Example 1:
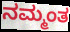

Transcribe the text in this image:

ನಮ್ಮಂತ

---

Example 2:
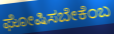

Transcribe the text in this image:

ಘೋಷಿಸಬೇಕೆಂಬ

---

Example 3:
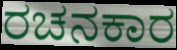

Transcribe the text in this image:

ರಚನಕಾರ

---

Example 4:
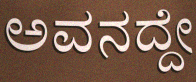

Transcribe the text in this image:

ಅವನದ್ದೇ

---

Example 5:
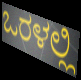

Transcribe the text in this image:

ಒರಳಲ್ಲಿ